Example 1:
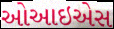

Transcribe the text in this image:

ઓઆઇએસ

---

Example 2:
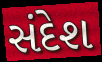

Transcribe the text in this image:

સંદેશ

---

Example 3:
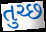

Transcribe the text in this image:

તુચ્છ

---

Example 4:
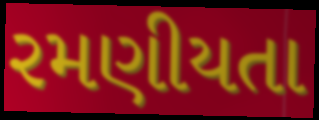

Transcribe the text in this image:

રમણીયતા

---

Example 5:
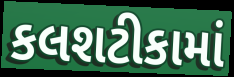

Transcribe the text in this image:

કલશટીકામાં